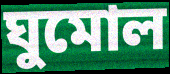
ঘুমোল